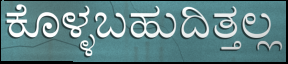
ಕೊಳ್ಳಬಹುದಿತ್ತಲ್ಲ